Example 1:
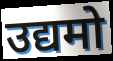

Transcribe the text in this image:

उद्यमो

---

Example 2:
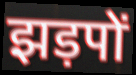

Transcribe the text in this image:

झड़पों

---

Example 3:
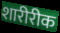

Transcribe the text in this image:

शारीरीक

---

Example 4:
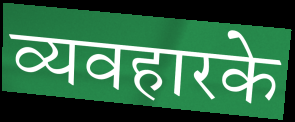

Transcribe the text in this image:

व्यवहारके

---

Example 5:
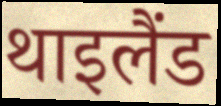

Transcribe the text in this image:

थाइलैंड